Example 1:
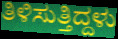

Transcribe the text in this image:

ತಿಳಿಸುತ್ತಿದ್ದಳು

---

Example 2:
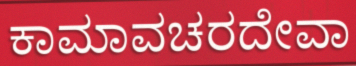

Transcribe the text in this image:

ಕಾಮಾವಚರದೇವಾ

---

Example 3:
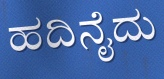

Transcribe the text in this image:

ಹದಿನೈದು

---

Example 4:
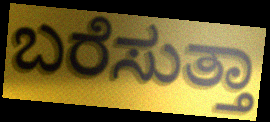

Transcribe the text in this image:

ಬರೆಸುತ್ತಾ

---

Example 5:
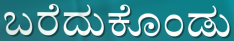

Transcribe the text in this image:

ಬರೆದುಕೊಂಡು